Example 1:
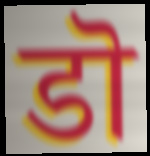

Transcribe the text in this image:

डॊ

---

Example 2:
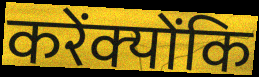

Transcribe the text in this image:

करेंक्योंकि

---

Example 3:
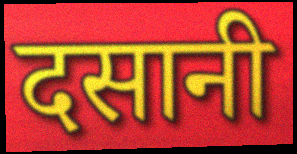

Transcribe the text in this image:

दसानी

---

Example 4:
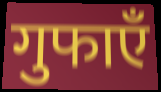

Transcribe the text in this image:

गुफाएँ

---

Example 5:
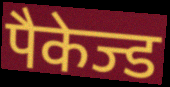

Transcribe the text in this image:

पैकेज्ड